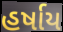
હર્ષાય